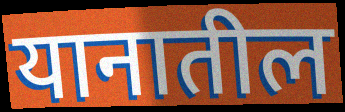
यानातील